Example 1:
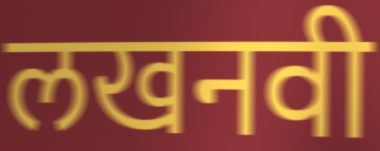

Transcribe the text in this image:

लखनवी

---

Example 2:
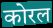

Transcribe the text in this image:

कोरल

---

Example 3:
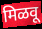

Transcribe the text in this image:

मिळवू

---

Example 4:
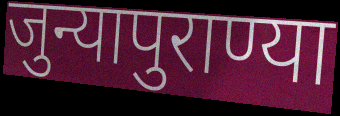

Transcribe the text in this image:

जुन्यापुराण्या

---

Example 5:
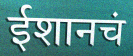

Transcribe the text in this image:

ईशानचं